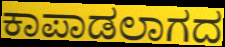
ಕಾಪಾಡಲಾಗದ